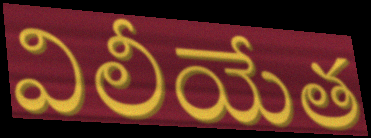
విలీయేత